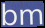
bm